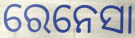
ରେନେସା